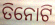
ତିନୋଟି